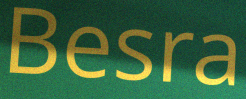
Besra